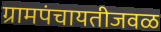
ग्रामपंचायतीजवळ